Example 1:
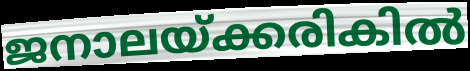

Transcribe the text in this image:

ജനാലയ്ക്കരികിൽ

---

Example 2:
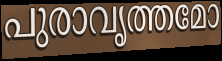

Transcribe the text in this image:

പുരാവൃത്തമോ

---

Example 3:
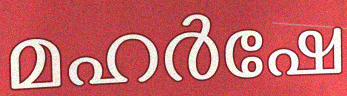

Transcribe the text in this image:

മഹർഷേ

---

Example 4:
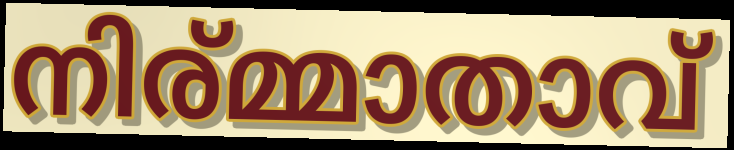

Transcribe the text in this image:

നിര്മ്മാതാവ്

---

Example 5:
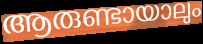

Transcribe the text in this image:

ആരുണ്ടായാലും